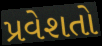
પ્રવેશતો